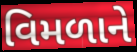
વિમળાને